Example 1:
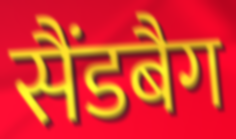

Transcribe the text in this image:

सैंडबैग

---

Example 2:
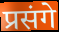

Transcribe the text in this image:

प्रसंगे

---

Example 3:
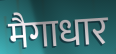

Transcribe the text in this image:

मैगाधार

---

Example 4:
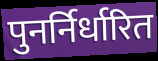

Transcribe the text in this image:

पुनर्निर्धारित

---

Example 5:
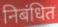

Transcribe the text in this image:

निबंधित